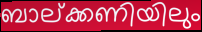
ബാല്ക്കണിയിലും